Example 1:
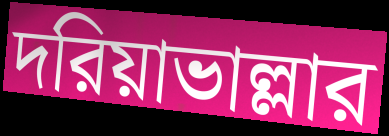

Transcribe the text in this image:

দরিয়াভাল্লার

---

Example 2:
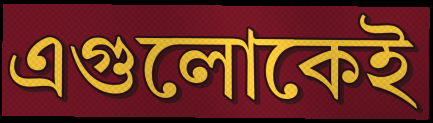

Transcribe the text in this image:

এগুলোকেই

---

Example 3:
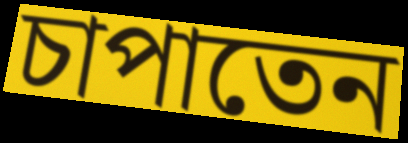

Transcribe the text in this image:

চাপাতেন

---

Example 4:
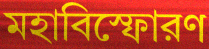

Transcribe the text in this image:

মহাবিস্ফোরণ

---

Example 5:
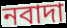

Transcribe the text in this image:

নবাদা